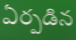
ఏర్పడిన